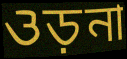
ওড়না